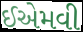
ઈએમવી